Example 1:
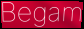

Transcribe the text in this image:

Begam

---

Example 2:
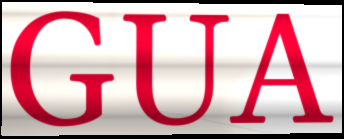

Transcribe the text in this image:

GUA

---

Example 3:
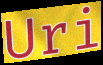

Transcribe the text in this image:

Uri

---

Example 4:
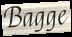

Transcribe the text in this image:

Bagge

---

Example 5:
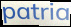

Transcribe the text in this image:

patria